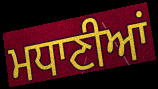
ਮਧਾਣੀਆਂ